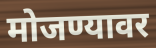
मोजण्यावर